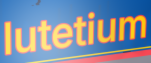
lutetium